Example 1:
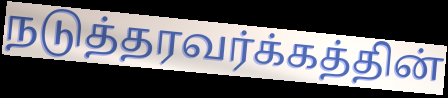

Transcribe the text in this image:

நடுத்தரவர்க்கத்தின்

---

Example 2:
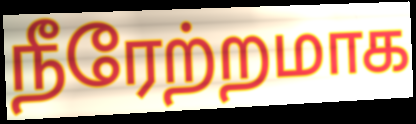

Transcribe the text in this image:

நீரேற்றமாக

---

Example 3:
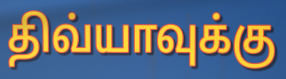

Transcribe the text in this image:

திவ்யாவுக்கு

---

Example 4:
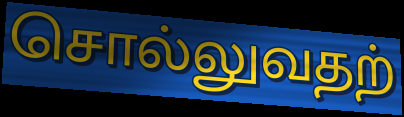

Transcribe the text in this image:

சொல்லுவதற்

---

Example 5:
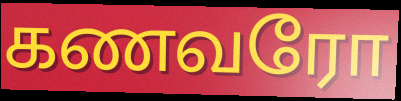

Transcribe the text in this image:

கணவரோ